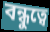
বন্ধুত্বে